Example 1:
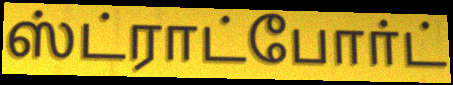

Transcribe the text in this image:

ஸ்ட்ராட்போர்ட்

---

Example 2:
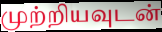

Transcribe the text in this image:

முற்றியவுடன்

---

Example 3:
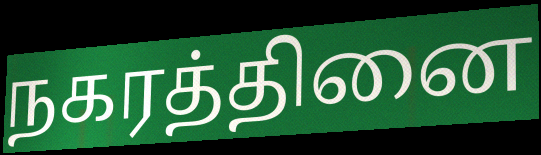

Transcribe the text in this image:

நகரத்தினை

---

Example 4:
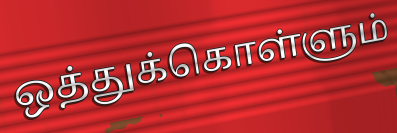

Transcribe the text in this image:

ஒத்துக்கொள்ளும்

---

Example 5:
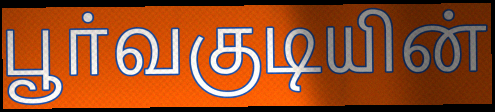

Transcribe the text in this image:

பூர்வகுடியின்